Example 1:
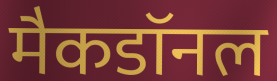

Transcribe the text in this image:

मैकडॉनल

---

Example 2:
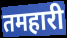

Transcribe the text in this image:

तमहारी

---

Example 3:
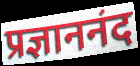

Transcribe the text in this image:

प्रज्ञाननंद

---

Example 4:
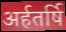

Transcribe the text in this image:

अर्हतर्षि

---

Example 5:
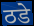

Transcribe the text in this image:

ठडे